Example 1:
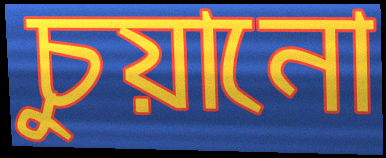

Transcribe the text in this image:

চুয়ানো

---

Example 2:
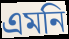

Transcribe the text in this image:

এমনি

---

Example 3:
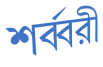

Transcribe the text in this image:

শর্ব্বরী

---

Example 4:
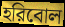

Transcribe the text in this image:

হরিবোল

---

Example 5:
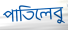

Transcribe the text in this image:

পাতিলেবু